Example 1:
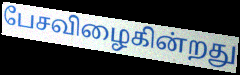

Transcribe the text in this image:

பேசவிழைகின்றது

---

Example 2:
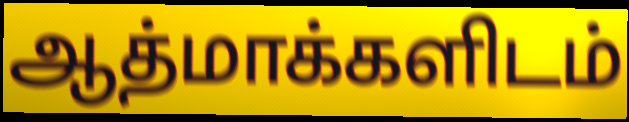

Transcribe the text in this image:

ஆத்மாக்களிடம்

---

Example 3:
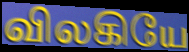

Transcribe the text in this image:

விலகியே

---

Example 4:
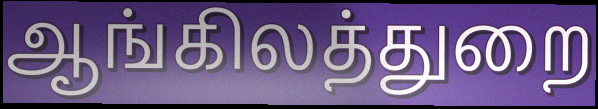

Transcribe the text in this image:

ஆங்கிலத்துறை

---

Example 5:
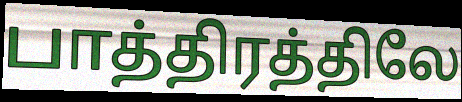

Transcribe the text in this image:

பாத்திரத்திலே